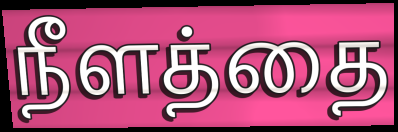
நீளத்தை